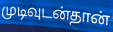
முடிவுடன்தான்